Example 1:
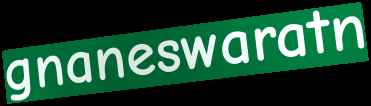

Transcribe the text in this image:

gnaneswaratn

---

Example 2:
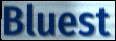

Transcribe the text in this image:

Bluest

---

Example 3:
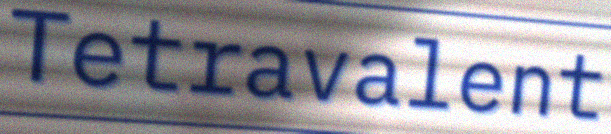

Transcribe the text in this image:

Tetravalent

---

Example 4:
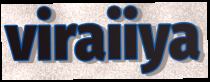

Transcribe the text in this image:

viraiiya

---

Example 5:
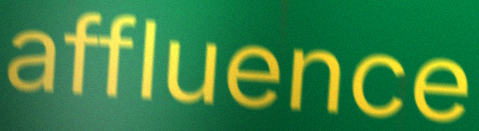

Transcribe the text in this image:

affluence